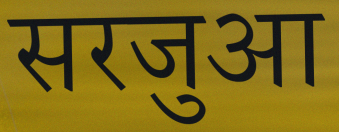
सरजुआ